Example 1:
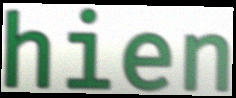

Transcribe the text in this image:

hien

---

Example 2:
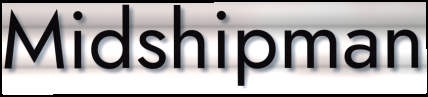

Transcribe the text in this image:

Midshipman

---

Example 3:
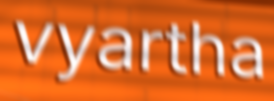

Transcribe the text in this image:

vyartha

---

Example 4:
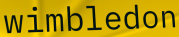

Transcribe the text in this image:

wimbledon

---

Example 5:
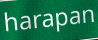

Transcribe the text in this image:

harapan